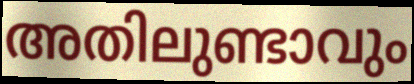
അതിലുണ്ടാവും